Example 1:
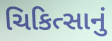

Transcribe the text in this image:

ચિકિત્સાનું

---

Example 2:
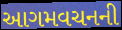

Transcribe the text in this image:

આગમવચનની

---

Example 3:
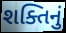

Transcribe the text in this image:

શક્તિનું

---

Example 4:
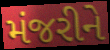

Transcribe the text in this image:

મંજરીને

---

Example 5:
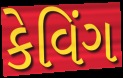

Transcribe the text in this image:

કેવિંગ